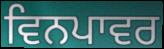
ਵਿਨਪਾਵਰ